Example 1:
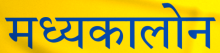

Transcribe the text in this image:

मध्यकालोन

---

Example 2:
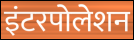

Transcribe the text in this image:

इंटरपोलेशन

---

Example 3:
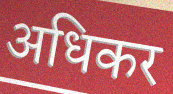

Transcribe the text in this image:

अधिकर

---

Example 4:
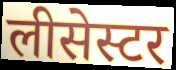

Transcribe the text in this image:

लीसेस्टर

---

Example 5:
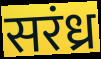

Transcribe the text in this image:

सरंध्र